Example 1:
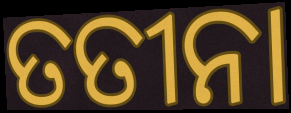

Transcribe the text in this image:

ତତୀନା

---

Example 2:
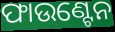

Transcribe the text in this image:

ଫାଉଣ୍ଟେନ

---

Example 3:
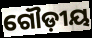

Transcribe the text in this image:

ଗୌଡ଼ୀୟ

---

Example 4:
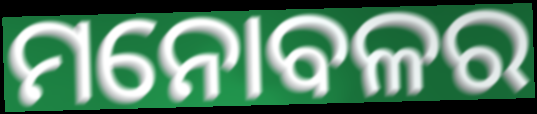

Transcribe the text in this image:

ମନୋବଳର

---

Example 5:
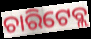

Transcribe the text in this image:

ଚାରିଟେବ୍ଲ